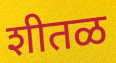
शीतळ